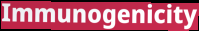
Immunogenicity